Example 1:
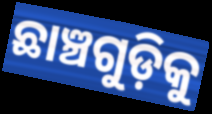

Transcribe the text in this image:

ଛାଞ୍ଚଗୁଡ଼ିକୁ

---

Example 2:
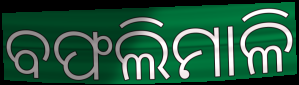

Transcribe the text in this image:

ବଫଲିମାଳି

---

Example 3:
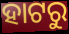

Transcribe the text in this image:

ହାଟରୁ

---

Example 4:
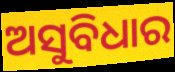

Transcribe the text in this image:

ଅସୁବିଧାର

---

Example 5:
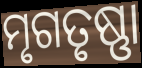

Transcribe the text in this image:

ମୃଗତୃଷ୍ଣା